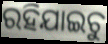
ରହିଯାଇଚୁ